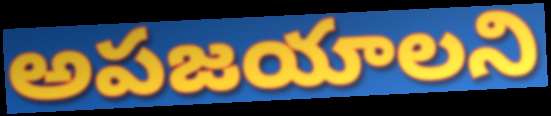
అపజయాలని